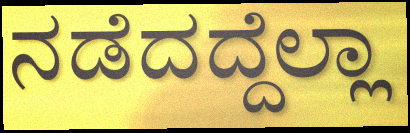
ನಡೆದದ್ದೆಲ್ಲಾ